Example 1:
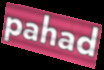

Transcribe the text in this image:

pahad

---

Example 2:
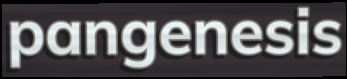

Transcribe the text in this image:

pangenesis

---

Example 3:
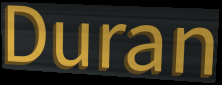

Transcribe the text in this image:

Duran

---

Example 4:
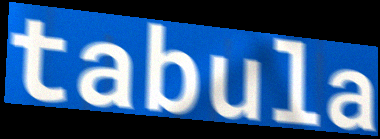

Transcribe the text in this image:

tabula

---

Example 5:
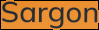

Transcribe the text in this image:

Sargon